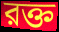
রক্ত